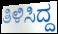
ತಿಳಿಸಿದ್ದ